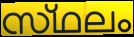
സ്‌ഥലം